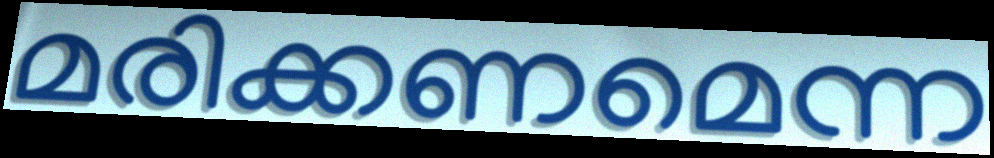
മരിക്കണമെന്ന